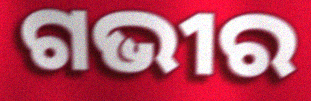
ଗଭୀର